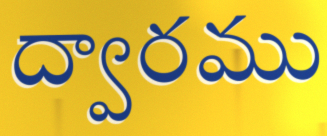
ద్వారము